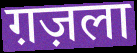
ग़ज़ला